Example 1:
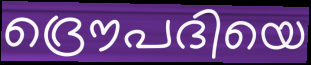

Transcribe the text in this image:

ദ്രൌപദിയെ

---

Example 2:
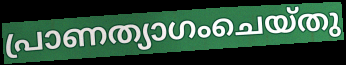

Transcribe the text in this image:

പ്രാണത്യാഗംചെയ്തു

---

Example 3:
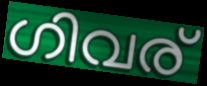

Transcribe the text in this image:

ഗിവര്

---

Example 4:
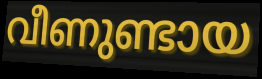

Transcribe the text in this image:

വീണുണ്ടായ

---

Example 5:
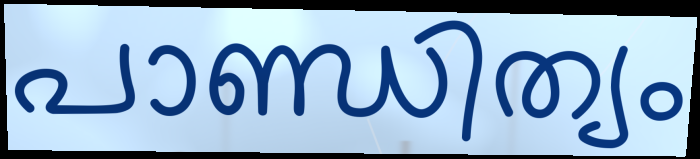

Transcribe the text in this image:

പാണ്ഡിത്യം